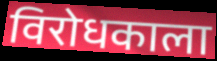
विरोधकाला